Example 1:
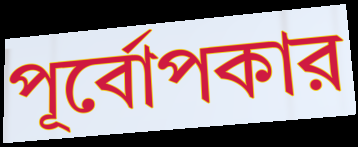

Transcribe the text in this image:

পূর্বোপকার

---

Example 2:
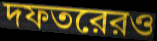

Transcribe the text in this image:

দফতরেরও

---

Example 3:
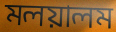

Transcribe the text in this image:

মলয়ালম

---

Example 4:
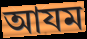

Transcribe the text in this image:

আযম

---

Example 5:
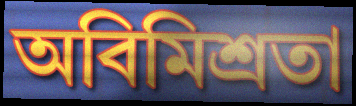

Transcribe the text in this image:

অবিমিশ্রতা